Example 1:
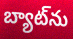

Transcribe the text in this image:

బ్యాట్‌ను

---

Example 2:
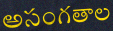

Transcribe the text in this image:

అసంగతాల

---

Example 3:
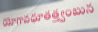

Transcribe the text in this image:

యోగావధూతత్త్వంబున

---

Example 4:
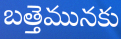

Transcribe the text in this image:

బత్తెమునకు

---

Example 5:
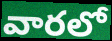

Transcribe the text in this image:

వారలో